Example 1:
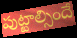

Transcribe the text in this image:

పుట్టాల్సిందే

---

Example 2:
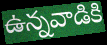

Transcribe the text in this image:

ఉన్నవాడికి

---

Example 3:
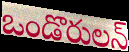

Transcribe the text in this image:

ఒండొరులన్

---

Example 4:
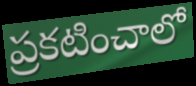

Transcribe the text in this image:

ప్రకటించాలో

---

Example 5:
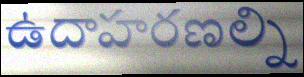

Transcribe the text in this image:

ఉదాహరణల్ని